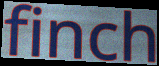
finch